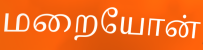
மறையோன்